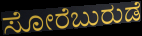
ಸೋರೆಬುರುಡೆ